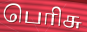
பெரிசு